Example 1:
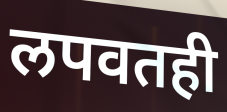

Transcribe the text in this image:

लपवतही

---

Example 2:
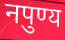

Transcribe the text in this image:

नपुण्य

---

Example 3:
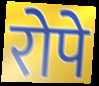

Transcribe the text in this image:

रोपे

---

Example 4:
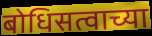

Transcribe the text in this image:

बोधिसत्वाच्या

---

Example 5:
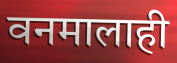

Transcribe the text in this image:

वनमालाही